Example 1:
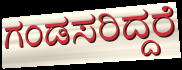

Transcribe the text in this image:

ಗಂಡಸರಿದ್ದರೆ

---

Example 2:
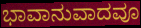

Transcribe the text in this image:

ಭಾವಾನುವಾದವೂ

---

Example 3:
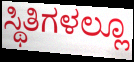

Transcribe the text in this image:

ಸ್ಥಿತಿಗಳಲ್ಲೂ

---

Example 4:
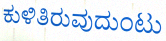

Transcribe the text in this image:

ಕುಳಿತಿರುವುದುಂಟು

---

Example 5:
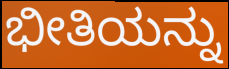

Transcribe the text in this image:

ಭೀತಿಯನ್ನು